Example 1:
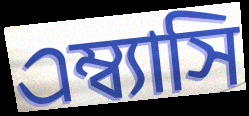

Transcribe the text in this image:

এম্ব্যাসি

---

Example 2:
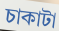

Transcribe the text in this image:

চাকাটা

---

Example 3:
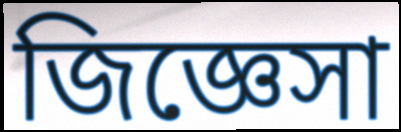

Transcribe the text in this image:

জিজ্ঞেসা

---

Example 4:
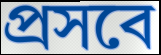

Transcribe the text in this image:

প্রসবে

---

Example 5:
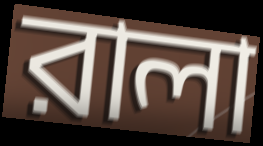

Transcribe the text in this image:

রালা